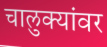
चालुक्यांवर